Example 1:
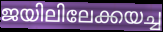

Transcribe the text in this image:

ജയിലിലേക്കയച്ച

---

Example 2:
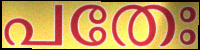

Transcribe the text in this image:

പതേഃ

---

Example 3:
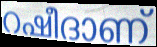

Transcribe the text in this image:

റഷീദാണ്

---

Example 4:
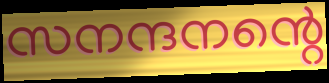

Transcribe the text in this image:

സനന്ദനന്റെ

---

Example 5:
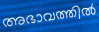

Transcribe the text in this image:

അഭാവത്തിൽ